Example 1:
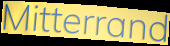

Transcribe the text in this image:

Mitterrand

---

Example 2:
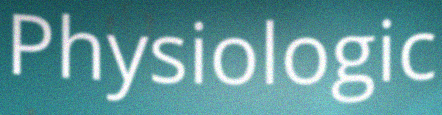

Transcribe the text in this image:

Physiologic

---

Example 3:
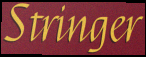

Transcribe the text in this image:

Stringer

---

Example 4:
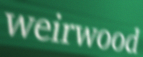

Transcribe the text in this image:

weirwood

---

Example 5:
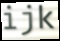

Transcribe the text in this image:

ijk